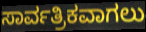
ಸಾರ್ವತ್ರಿಕವಾಗಲು